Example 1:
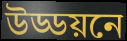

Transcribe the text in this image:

উড্ডয়নে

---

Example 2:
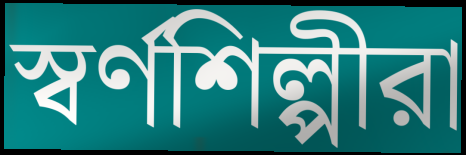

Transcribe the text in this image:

স্বর্ণশিল্পীরা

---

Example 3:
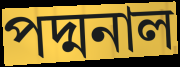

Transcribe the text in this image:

পদ্মনাল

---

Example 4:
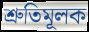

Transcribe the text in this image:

শ্রুতিমূলক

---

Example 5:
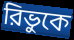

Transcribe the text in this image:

রিভুকে